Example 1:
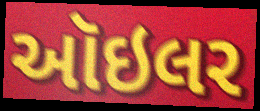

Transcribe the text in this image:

ઑઇલર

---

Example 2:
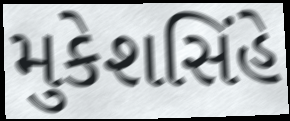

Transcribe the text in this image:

મુકેશસિંહે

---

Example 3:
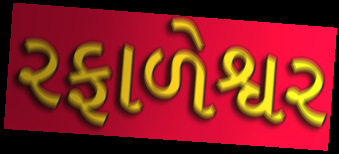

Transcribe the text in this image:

રફાળેશ્વર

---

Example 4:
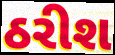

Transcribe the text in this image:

ઠરીશ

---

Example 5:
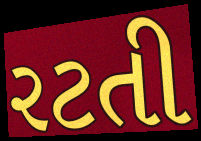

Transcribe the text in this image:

રટતી